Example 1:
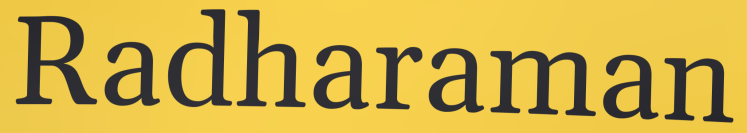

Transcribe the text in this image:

Radharaman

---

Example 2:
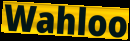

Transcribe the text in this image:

Wahloo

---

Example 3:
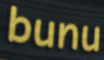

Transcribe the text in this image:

bunu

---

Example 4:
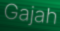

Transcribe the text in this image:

Gajah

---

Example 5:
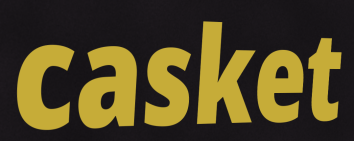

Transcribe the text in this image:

casket